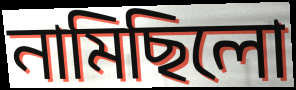
নামিছিলো